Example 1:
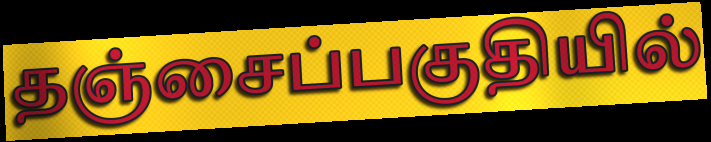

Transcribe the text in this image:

தஞ்சைப்பகுதியில்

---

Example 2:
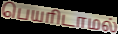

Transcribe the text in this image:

பெயரிடாமல்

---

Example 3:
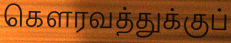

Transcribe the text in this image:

கௌரவத்துக்குப்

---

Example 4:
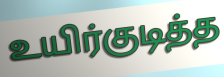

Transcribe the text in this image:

உயிர்குடித்த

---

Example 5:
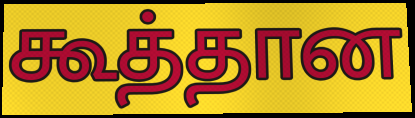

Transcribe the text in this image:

கூத்தான